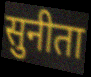
सुनीता